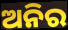
ଅନିର